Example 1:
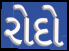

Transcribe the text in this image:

રોદો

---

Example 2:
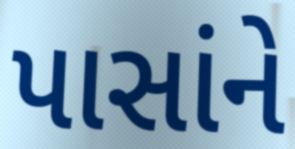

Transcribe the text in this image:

પાસાંને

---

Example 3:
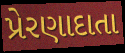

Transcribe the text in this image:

પ્રેરણાદાતા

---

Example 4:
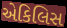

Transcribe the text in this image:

એકિલિસ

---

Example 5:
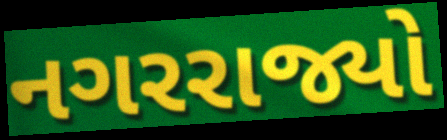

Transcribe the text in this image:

નગરરાજ્યો